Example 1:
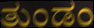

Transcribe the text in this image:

ತುಂಡಂ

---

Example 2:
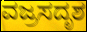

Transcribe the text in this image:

ವಜ್ರಸದೃಶ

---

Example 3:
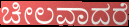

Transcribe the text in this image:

ಚೀಲವಾದರೆ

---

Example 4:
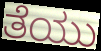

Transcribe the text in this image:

ತೆಯು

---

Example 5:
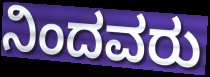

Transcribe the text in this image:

ನಿಂದವರು